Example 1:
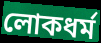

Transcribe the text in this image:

লোকধর্ম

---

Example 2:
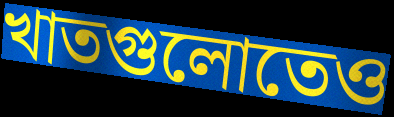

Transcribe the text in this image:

খাতগুলোতেও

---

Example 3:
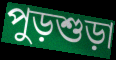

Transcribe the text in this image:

পুড়শুড়া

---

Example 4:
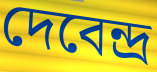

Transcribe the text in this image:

দেবেন্দ্র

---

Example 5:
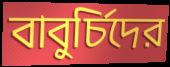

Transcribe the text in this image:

বাবুর্চিদের